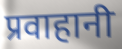
प्रवाहानी